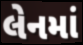
લેનમાં